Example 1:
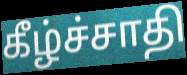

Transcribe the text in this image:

கீழ்ச்சாதி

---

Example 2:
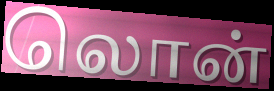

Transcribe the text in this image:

லொன்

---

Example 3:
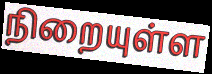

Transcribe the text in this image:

நிறையுள்ள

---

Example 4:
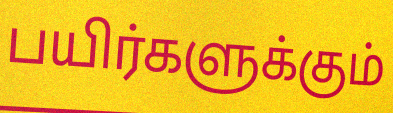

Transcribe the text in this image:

பயிர்களுக்கும்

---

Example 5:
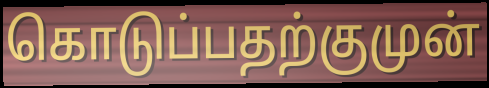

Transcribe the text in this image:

கொடுப்பதற்குமுன்